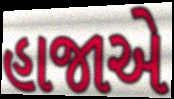
હાજાએ